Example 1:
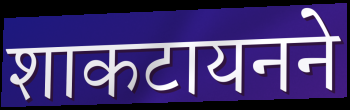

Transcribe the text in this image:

शाकटायनने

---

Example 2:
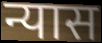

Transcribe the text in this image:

न्‍यास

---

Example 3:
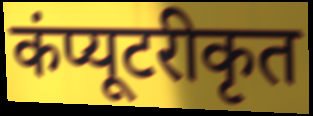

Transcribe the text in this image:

कंप्यूटरीकृत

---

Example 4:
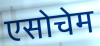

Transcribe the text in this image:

एसोचेम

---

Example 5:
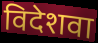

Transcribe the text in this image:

विदेशवा